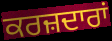
ਕਰਜ਼ਦਾਰਾਂ